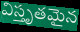
విస్తృతమైన